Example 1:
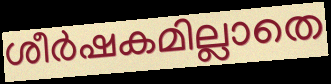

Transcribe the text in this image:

ശീർഷകമില്ലാതെ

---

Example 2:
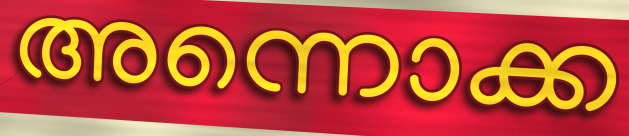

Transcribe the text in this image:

അന്നൊക്ക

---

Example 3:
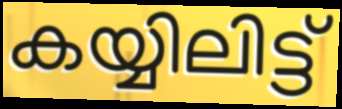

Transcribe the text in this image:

കയ്യിലിട്ട്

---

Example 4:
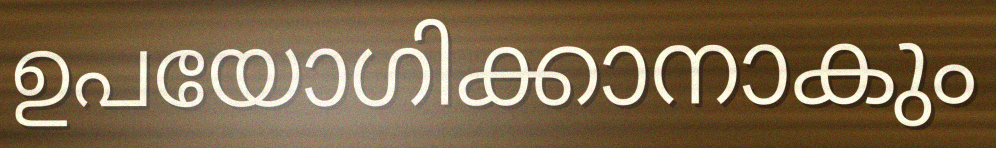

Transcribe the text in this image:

ഉപയോഗിക്കാനാകും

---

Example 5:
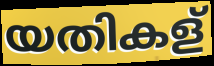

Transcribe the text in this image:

യതികള്